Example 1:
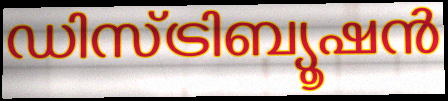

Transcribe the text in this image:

ഡിസ്ട്രിബ്യൂഷൻ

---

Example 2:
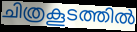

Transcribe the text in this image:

ചിത്രകൂടത്തിൽ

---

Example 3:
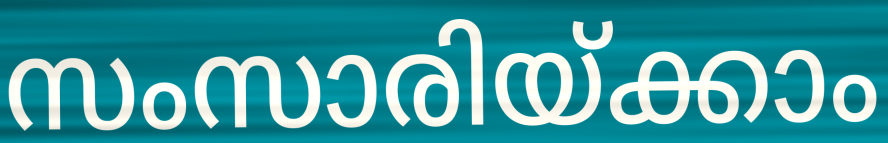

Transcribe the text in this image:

സംസാരിയ്ക്കാം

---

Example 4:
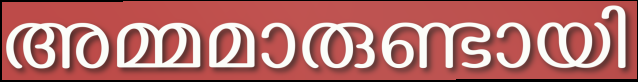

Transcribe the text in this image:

അമ്മമാരുണ്ടായി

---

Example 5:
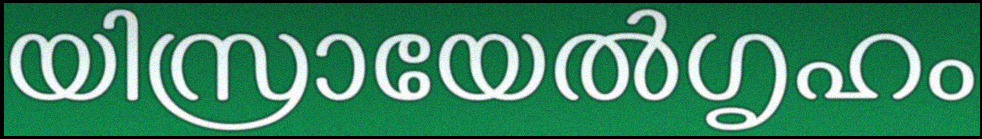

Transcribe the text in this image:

യിസ്രായേൽഗൃഹം